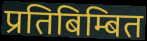
प्रतिबिम्बित